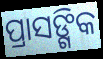
ପ୍ରାସଙ୍ଗିକ